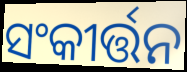
ସଂକୀର୍ତ୍ତନ